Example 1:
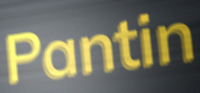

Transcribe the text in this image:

Pantin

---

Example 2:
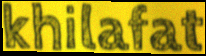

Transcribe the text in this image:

khilafat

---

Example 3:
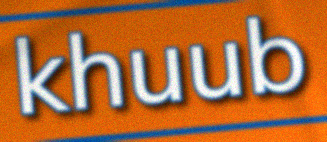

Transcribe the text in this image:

khuub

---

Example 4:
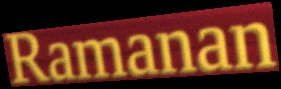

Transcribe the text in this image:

Ramanan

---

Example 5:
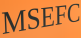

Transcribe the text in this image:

MSEFC